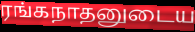
ரங்கநாதனுடைய